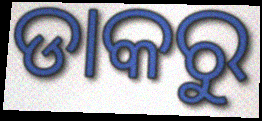
ଡାକରୁ